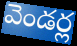
వెండర్ల